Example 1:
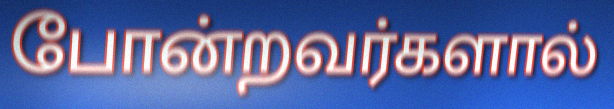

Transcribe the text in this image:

போன்றவர்களால்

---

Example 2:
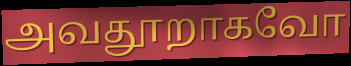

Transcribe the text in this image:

அவதூறாகவோ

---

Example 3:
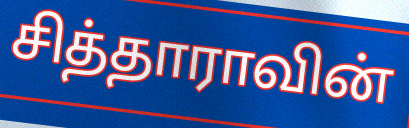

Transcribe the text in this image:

சித்தாராவின்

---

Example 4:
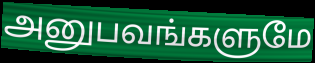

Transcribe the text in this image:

அனுபவங்களுமே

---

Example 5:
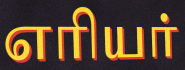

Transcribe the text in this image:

எரியர்